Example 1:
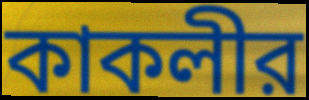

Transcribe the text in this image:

কাকলীর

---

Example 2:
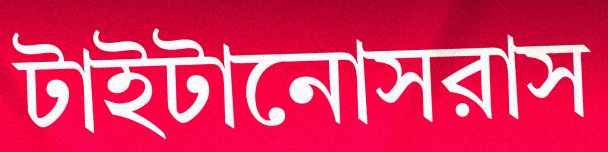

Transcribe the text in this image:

টাইটানোসরাস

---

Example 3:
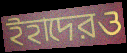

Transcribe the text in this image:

ইহাদেরও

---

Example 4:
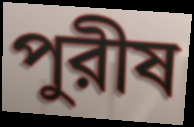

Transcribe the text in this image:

পুরীষ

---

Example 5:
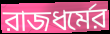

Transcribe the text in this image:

রাজধর্মের